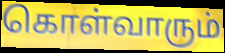
கொள்வாரும்